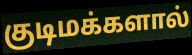
குடிமக்களால்